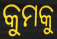
କୁମକୁ